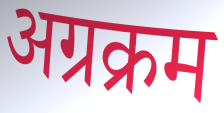
अग्रक्रम